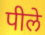
पीले